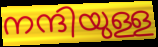
നന്ദിയുള്ള